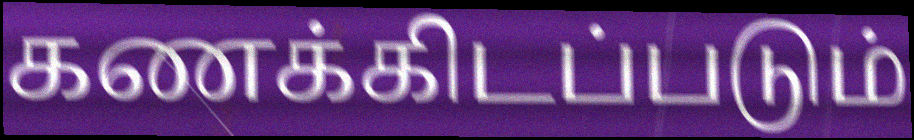
கணக்கிடப்படும்